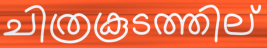
ചിത്രകൂടത്തില്